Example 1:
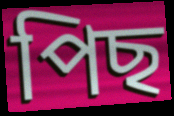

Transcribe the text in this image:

পিছ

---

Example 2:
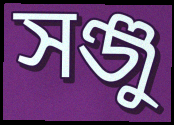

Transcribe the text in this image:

সঞ্জু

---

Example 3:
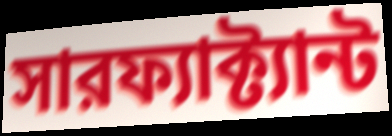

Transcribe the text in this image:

সারফ্যাক্ট্যান্ট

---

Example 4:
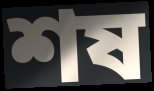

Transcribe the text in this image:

শষ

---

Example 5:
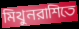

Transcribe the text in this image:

মিথুনরাশিতে